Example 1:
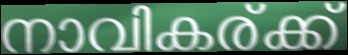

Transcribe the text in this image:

നാവികര്ക്ക്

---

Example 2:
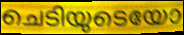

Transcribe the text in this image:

ചെടിയുടെയോ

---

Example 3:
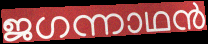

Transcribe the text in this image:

ജഗന്നാഥൻ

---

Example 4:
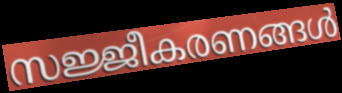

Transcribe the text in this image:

സജ്ജീകരണങ്ങൾ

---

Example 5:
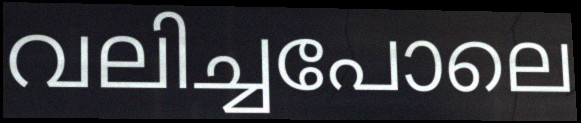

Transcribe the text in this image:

വലിച്ചപോലെ